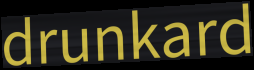
drunkard